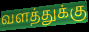
வளத்துக்கு